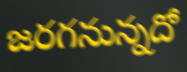
జరగనున్నదో